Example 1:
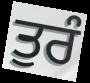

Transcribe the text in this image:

ਤੁਰੰ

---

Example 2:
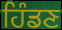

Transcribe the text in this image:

ਹਿੰਡਣ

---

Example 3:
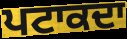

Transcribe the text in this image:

ਪਟਾਕਦਾ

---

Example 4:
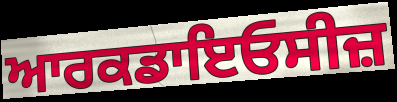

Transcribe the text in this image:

ਆਰਕਡਾਇਓਸੀਜ਼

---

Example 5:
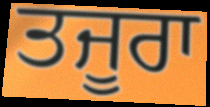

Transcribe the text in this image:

ਤਜੂਰਾ